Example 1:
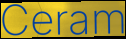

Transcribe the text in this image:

Ceram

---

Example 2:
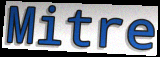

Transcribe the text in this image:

Mitre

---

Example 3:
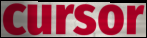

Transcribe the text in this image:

cursor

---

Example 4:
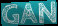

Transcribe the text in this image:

GAN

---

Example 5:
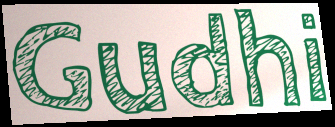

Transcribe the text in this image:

Gudhi